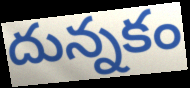
దున్నకం